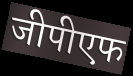
जीपीएफ